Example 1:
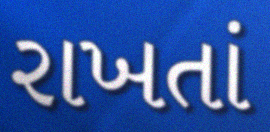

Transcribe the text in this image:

રાખતાં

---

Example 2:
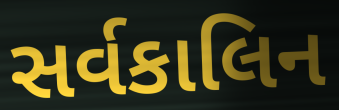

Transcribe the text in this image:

સર્વકાલિન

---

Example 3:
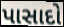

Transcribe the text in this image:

પાસાદો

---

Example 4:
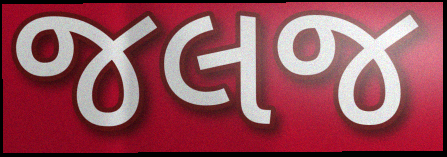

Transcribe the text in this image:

જલજ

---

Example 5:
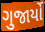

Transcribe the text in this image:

ગુજાર્યો